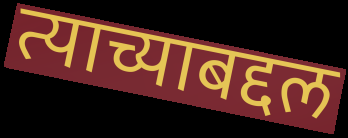
त्याच्याबद्दल